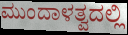
ಮುಂದಾಳತ್ವದಲ್ಲಿ